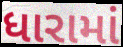
ધારામાં